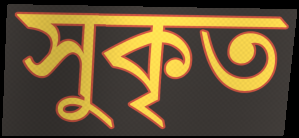
সুকৃত